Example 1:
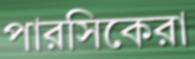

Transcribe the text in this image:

পারসিকেরা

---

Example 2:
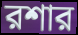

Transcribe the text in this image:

রশার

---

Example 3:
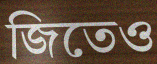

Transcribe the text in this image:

জিতেও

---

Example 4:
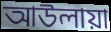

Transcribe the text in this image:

আউলায়া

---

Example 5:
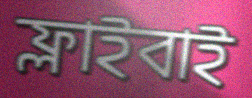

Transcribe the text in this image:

ফ্লাইবাই